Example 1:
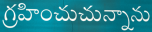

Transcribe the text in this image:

గ్రహించుచున్నాను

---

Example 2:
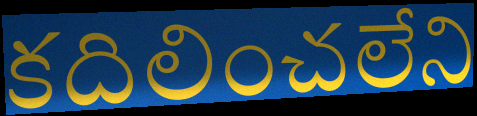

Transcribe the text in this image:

కదిలించలేని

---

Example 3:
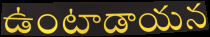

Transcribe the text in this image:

ఉంటాడాయన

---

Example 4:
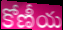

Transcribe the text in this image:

కోణీయ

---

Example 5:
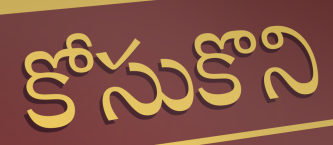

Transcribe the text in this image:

కోసుకొని